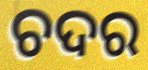
ଚଦର